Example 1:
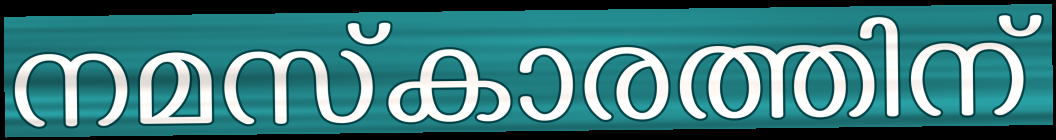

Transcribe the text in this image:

നമസ്‌കാരത്തിന്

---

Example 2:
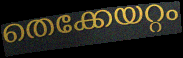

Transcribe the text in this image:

തെക്കേയറ്റം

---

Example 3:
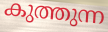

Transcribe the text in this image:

കുത്തുന്ന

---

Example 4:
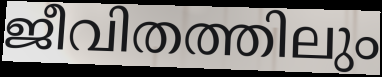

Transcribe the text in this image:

ജീവിതത്തിലും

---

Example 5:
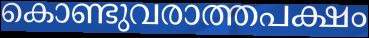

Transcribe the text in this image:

കൊണ്ടുവരാത്തപക്ഷം